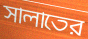
সালাতের